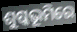
ଶୁଷ୍କଭୂମିରେ